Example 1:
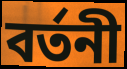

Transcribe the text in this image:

বৰ্তনী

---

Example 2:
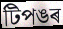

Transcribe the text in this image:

টিপঙৰ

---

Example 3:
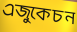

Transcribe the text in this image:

এজুকেচন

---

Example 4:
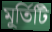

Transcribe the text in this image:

মূৰ্তিটি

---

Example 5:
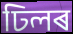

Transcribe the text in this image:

ঢিলৰ